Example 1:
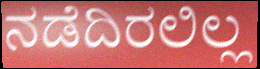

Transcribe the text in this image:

ನಡೆದಿರಲಿಲ್ಲ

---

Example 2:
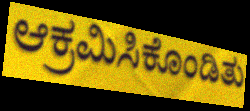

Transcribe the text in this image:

ಆಕ್ರಮಿಸಿಕೊಂಡಿತು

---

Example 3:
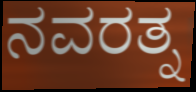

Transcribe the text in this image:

ನವರತ್ನ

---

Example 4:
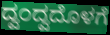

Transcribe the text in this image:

ದ್ವಂದ್ವದೊಳಗೆ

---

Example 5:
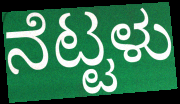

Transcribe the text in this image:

ನೆಟ್ಟಳು